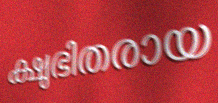
ക്ഷുഭിതരായ